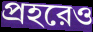
প্রহরেও